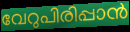
വേറുപിരിപ്പാൻ